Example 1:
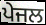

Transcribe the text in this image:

ਪੇਜਲ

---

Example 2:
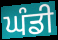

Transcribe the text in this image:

ਘੰਡੀ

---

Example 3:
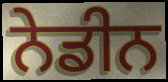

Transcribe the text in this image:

ਨੇਡੀਨ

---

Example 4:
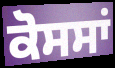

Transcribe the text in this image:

ਕੋਸਸਾਂ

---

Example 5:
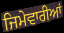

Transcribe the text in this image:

ਜਿਮੇਵਾਰੀਆਂ